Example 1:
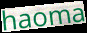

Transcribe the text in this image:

haoma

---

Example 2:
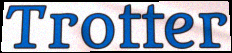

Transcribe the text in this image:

Trotter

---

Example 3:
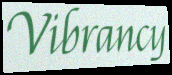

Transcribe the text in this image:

Vibrancy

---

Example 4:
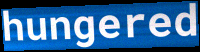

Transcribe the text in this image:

hungered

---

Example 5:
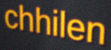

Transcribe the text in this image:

chhilen